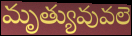
మృత్యువువలె